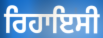
ਰਿਹਾਇਸੀ